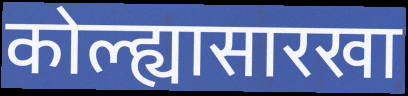
कोल्ह्यासारखा